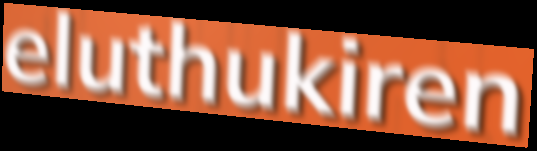
eluthukiren